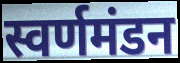
स्वर्णमंडन